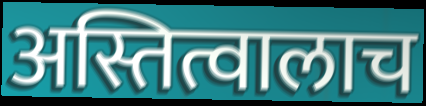
अस्तित्वालाच